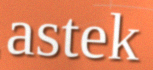
astek